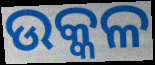
ଉକ୍କଳ